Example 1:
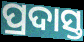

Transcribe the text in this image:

ପ୍ରଦାସ୍ତ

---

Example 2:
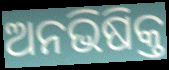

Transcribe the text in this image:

ଅନଭିଷିକ୍ତ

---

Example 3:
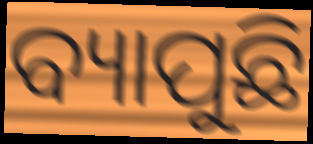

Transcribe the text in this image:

ବ୍ୟାପୁଛି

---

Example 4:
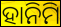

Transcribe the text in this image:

ହାନିମି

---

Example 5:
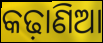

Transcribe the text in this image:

କଢ଼ାଣିଆ